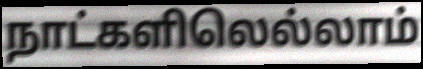
நாட்களிலெல்லாம்